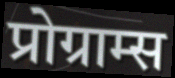
प्रोग्राम्‍स